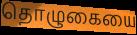
தொழுகையை